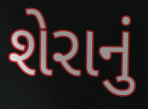
શેરાનું